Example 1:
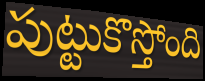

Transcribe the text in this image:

పుట్టుకొస్తోంది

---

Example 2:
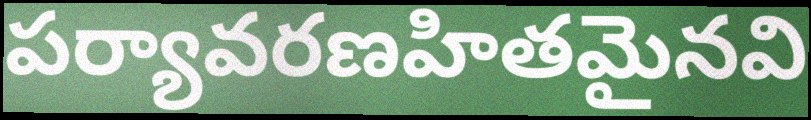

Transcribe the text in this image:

పర్యావరణహితమైనవి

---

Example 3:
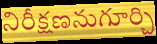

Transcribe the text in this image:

నిరీక్షణనుగూర్చి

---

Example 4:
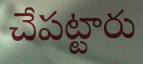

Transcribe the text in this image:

చేపట్టారు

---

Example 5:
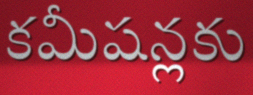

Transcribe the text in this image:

కమీషన్లకు